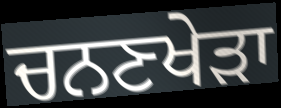
ਚਨਣਖੇੜਾ